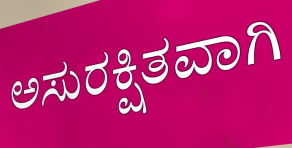
ಅಸುರಕ್ಷಿತವಾಗಿ